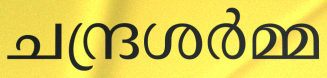
ചന്ദ്രശർമ്മ